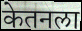
केतनला